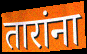
तारांना